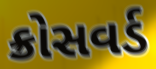
ક્રોસવર્ડ